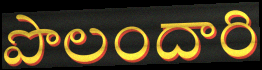
పొలందారి